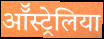
ऑॅस्ट्रेलिया